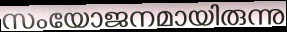
സംയോജനമായിരുന്നു